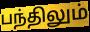
பந்திலும்